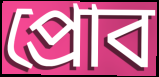
প্রোব